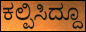
ಕಲ್ಪಿಸಿದ್ದೂ